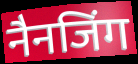
नैनजिंग